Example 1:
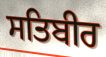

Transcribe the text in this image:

ਸਤਿਬੀਰ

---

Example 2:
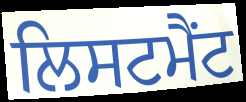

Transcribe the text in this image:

ਲਿਸਟਮੈਂਟ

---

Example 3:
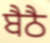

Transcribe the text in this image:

ਬੈਠੈ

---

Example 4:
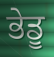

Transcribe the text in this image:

ਭੇਡੂ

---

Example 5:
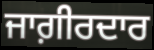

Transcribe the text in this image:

ਜਾਗ਼ੀਰਦਾਰ